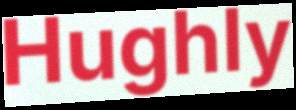
Hughly